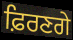
ਫ਼ਿਰਣਗੇ